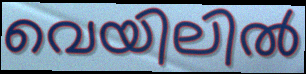
വെയിലിൽ